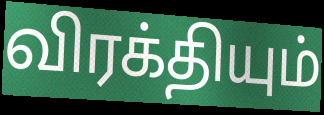
விரக்தியும்